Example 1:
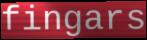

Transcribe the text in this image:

fingars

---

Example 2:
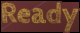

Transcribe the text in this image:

Ready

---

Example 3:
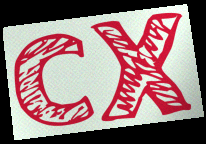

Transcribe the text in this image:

cx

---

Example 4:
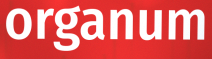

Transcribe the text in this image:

organum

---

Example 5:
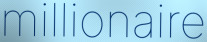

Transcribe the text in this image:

millionaire